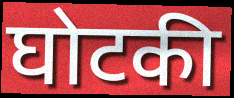
घोटकी